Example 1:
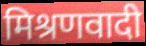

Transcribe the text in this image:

मिश्रणवादी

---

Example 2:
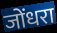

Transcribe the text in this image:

जोंधरा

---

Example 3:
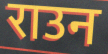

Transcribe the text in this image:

राउन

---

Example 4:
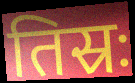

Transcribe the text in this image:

तिस्रः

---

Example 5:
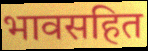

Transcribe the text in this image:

भावसहित